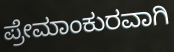
ಪ್ರೇಮಾಂಕುರವಾಗಿ